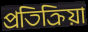
প্ৰতিক্ৰিয়া